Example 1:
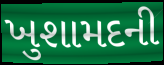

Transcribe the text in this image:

ખુશામદની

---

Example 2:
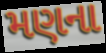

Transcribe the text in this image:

મણના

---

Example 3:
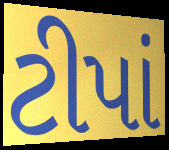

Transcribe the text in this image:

ટીપાં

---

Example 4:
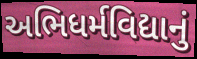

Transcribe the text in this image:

અભિધર્મવિદ્યાનું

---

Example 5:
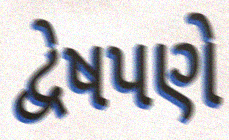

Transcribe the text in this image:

દ્વેષપણે